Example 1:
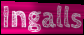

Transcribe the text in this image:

Ingalls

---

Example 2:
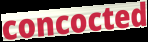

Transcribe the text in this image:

concocted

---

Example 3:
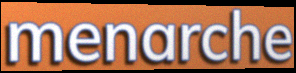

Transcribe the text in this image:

menarche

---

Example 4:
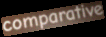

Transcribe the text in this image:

comparative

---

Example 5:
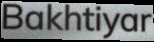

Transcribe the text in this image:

Bakhtiyar